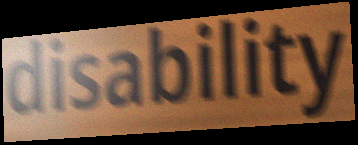
disability